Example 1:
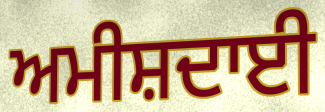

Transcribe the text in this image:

ਅਮੀਸ਼ਦਾਈ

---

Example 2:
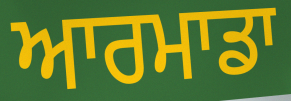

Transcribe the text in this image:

ਆਰਮਾਡਾ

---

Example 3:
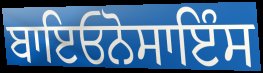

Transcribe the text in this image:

ਬਾਇਓਨੋਸਾਇੰਸ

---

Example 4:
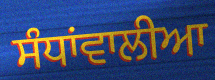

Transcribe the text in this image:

ਸੰਧਾਂਵਾਲੀਆ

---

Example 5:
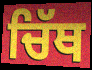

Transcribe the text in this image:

ਚਿੱਥ